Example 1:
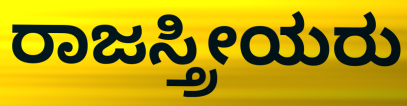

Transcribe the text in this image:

ರಾಜಸ್ತ್ರೀಯರು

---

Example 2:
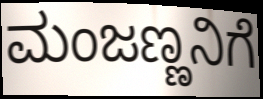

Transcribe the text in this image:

ಮಂಜಣ್ಣನಿಗೆ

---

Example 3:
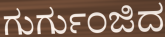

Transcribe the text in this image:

ಗುರ್ಗುಂಜಿದ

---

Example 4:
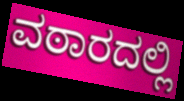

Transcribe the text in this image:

ವಠಾರದಲ್ಲಿ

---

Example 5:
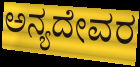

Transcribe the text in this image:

ಅನ್ಯದೇವರ